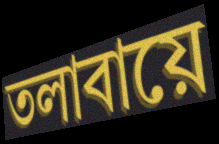
তলাবায়ে